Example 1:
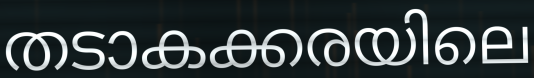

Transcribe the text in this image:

തടാകക്കരയിലെ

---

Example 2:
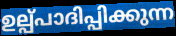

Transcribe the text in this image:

ഉല്പ്പാദിപ്പിക്കുന്ന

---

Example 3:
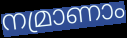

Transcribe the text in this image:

നമ്രാണാം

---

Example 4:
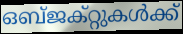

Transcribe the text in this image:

ഒബ്ജക്റ്റുകൾക്ക്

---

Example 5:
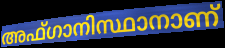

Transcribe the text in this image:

അഫ്ഗാനിസ്ഥാനാണ്